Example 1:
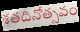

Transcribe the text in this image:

శతదినోత్సవం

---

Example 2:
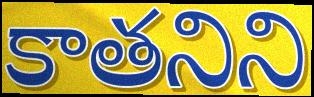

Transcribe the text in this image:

కాతనిని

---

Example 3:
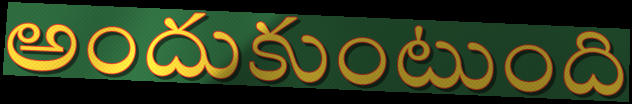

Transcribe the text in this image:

అందుకుంటుంది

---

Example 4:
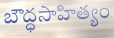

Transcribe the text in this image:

బౌద్ధసాహిత్యం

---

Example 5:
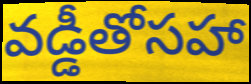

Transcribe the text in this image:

వడ్డీతోసహా